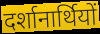
दर्शानार्थियों